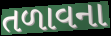
તળાવના